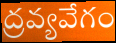
ద్రవ్యవేగం